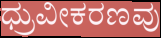
ಧ್ರುವೀಕರಣವು